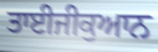
ਤਾਈਜੀਕੁਆਨ